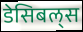
डेसिबल्स